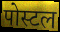
पोस्टल